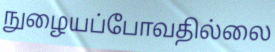
நுழையப்போவதில்லை